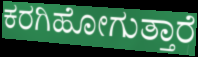
ಕರಗಿಹೋಗುತ್ತಾರೆ